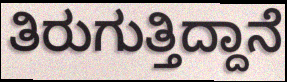
ತಿರುಗುತ್ತಿದ್ದಾನೆ